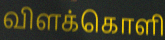
விளக்கொளி